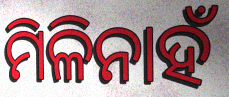
ମିଳିନାହଁ